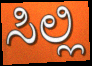
ಸಿಲ್ಲಿ